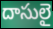
దాసులై